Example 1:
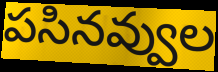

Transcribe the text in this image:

పసినవ్వుల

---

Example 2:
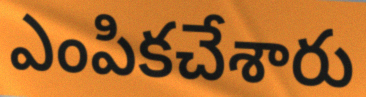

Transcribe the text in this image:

ఎంపికచేశారు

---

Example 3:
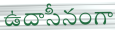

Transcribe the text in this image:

ఉదాసీనంగా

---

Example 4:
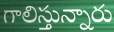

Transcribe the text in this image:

గాలిస్తున్నారు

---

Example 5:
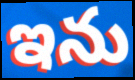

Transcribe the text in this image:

ఇను